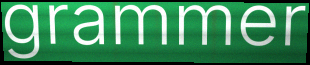
grammer